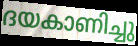
ദയകാണിച്ചു